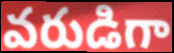
వరుడిగా